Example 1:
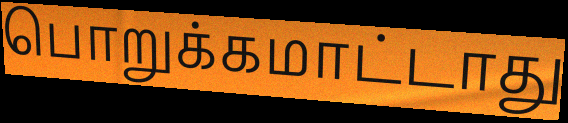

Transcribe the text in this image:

பொறுக்கமாட்டாது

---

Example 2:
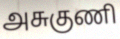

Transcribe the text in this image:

அசுகுணி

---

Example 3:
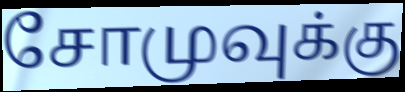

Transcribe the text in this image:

சோமுவுக்கு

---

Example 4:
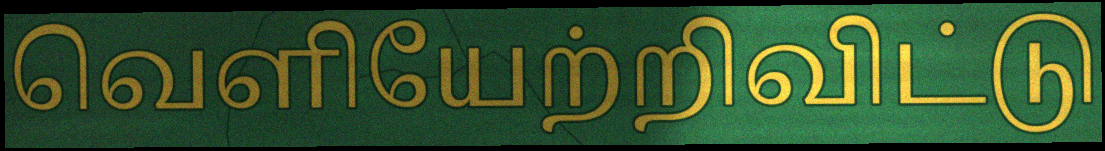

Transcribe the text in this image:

வெளியேற்றிவிட்டு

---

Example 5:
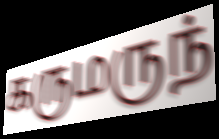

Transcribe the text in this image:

கருமருந்